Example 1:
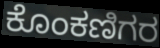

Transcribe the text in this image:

ಕೊಂಕಣಿಗರ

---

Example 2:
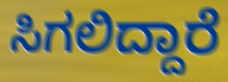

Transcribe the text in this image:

ಸಿಗಲಿದ್ದಾರೆ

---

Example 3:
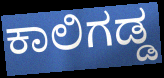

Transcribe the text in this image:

ಕಾಲಿಗಡ್ಡ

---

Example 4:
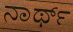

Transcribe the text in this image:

ನಾರ್ಥ್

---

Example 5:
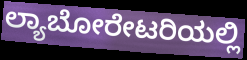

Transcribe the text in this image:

ಲ್ಯಾಬೋರೇಟರಿಯಲ್ಲಿ